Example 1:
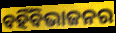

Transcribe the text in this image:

ବହିଁବିଭାଜନର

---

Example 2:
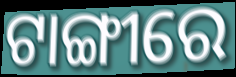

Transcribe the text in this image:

ଟାଙ୍ଗୀରେ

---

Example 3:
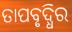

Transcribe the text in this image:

ତାପବୃଦ୍ଧିର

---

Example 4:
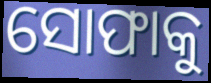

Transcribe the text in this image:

ସୋଫାକୁ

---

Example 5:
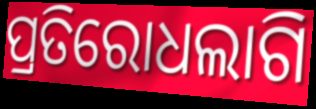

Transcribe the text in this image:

ପ୍ରତିରୋଧଲାଗି